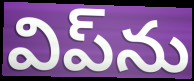
విప్‌ను